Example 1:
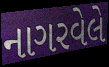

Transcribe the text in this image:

નાગરવેલે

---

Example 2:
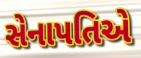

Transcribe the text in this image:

સેનાપતિએ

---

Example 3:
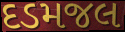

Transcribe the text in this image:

દડમજલ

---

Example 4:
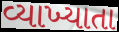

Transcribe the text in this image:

વ્યાખ્યાતા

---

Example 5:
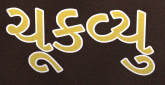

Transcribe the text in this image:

ચૂકવ્યુ